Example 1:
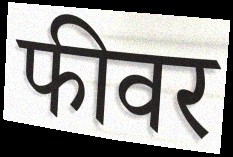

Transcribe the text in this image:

फीवर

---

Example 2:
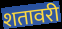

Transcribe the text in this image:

शतावरी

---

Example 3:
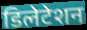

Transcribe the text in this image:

डिलेटेशन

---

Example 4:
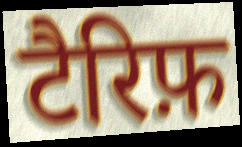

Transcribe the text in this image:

टैरिफ़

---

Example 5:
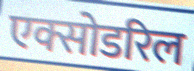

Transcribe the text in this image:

एक्सोडरिल